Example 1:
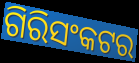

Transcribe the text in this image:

ଗିରିସଂକଟର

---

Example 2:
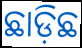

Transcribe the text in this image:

ଛାଡ଼ିଛ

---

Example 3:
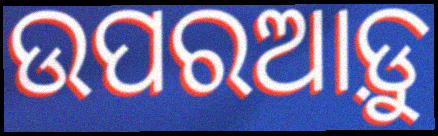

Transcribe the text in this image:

ଉପରଆଡ଼ୁ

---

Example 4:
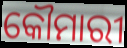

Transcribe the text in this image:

କୌମାରୀ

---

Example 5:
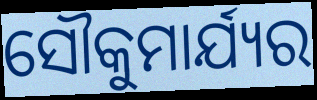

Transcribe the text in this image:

ସୌକୁମାର୍ଯ୍ୟର